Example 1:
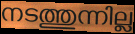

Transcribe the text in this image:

നടത്തുന്നില്ല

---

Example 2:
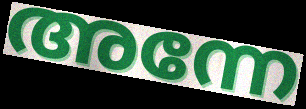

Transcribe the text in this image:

അന്നേ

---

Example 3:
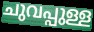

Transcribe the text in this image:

ചുവപ്പുള്ള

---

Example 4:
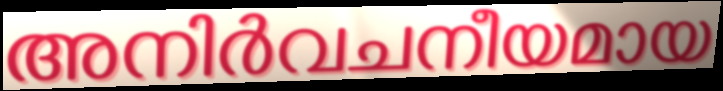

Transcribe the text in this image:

അനിർവചനീയമായ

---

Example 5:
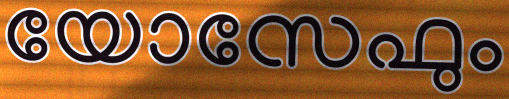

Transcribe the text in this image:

യോസേഫും